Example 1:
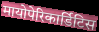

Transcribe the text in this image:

मायोपेरिकार्डिटिस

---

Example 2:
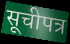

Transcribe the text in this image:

सूचीपत्र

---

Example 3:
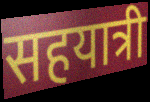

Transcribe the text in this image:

सहयात्री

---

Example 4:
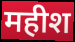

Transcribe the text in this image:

महीश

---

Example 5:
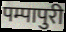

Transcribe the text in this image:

पम्पापुरी